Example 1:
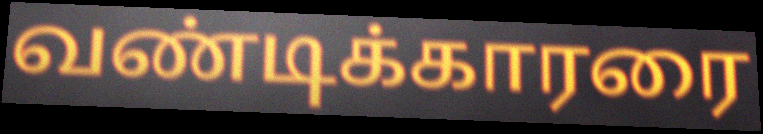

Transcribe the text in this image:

வண்டிக்காரரை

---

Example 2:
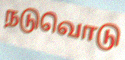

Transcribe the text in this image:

நடுவொடு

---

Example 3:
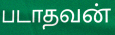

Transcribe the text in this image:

படாதவன்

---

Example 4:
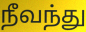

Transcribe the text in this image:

நீவந்து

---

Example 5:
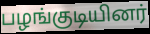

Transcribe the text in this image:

பழங்குடியினர்